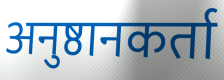
अनुष्ठानकर्ता